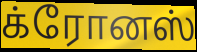
க்ரோனஸ்